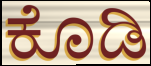
ಕೊಡಿ